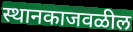
स्थानकाजवळील